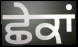
ਛੇਕਾਂ